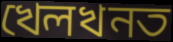
খেলখনত